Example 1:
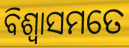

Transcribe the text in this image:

ବିଶ୍ୱାସମତେ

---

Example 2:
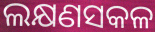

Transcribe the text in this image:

ଲକ୍ଷଣସକଳ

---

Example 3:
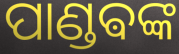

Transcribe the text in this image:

ପାଣ୍ଡଵଙ୍କ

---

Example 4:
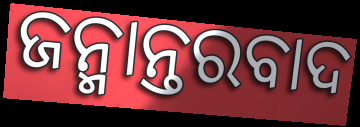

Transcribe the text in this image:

ଜନ୍ମାନ୍ତରବାଦ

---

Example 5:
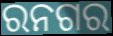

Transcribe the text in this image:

ରନଗର